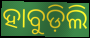
ହାବୁଡ଼ିଲି